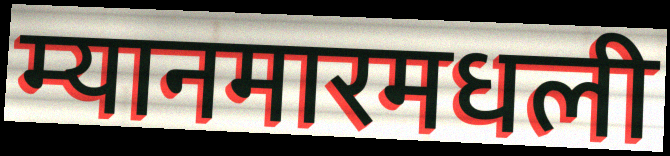
म्यानमारमधली